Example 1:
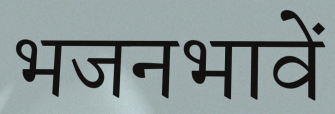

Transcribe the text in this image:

भजनभावें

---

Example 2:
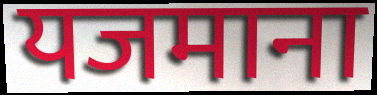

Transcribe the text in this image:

यजमाना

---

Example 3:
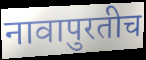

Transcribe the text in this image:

नावापुरतीच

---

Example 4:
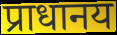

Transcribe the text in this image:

प्राधानय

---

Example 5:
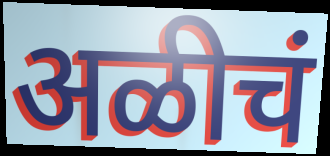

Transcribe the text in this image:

अळीचं